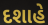
દશાહે